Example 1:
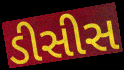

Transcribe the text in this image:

ડીસીસ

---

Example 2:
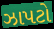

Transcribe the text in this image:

ઝાપટો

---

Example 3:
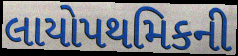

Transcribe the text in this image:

લાયોપથમિકની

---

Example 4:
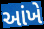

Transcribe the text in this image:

આંખે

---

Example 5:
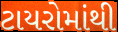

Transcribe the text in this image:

ટાયરોમાંથી